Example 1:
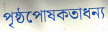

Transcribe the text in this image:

পৃষ্ঠপোষকতাধন্য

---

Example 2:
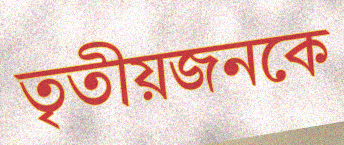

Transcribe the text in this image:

তৃতীয়জনকে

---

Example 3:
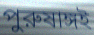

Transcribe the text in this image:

পুরুষাঙ্গই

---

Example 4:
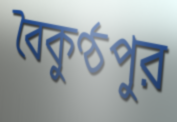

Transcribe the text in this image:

বৈকুণ্ঠপুর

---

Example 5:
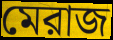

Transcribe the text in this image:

মেরাজ